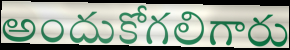
అందుకోగలిగారు